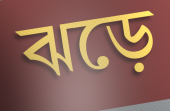
ঝড়ে